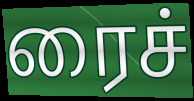
ரைச்